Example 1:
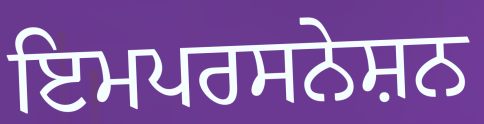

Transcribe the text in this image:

ਇਮਪਰਸਨੇਸ਼ਨ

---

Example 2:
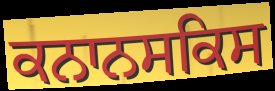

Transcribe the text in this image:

ਕਨਾਨਸਕਿਸ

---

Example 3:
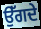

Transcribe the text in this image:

ਉੱਗਦੇ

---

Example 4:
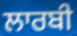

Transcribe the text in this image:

ਲਾਰਬੀ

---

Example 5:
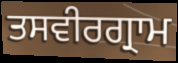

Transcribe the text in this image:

ਤਸਵੀਰਗ੍ਰਾਮ